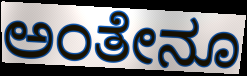
ಅಂತೇನೂ